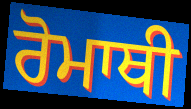
ਰੋਮਾਥੀ